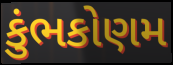
કુંભકોણમ